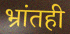
भ्रांतही